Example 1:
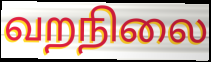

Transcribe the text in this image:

வறநிலை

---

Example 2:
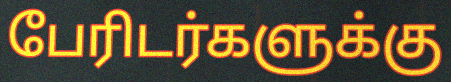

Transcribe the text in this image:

பேரிடர்களுக்கு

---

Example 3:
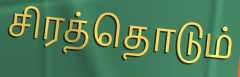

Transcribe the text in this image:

சிரத்தொடும்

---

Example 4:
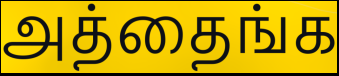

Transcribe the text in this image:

அத்தைங்க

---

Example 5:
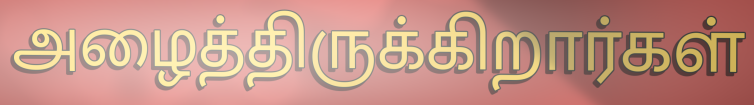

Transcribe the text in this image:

அழைத்திருக்கிறார்கள்